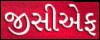
જીસીએફ